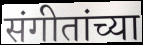
संगीतांच्या